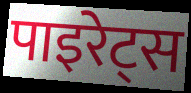
पाइरेट्स